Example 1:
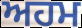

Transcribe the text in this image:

ਅਹਮ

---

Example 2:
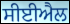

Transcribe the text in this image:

ਸੀਈਐਲ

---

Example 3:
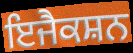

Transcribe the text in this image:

ਇਜੈਕਸ਼ਨ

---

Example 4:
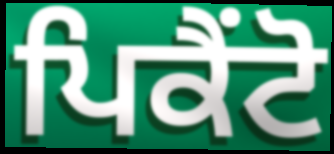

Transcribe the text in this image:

ਪਿਕੈਂਟੋ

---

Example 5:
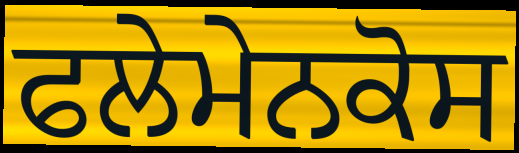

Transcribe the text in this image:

ਫਲੇਮੇਨਕੋਸ